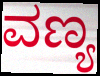
ವಣ್ಯ